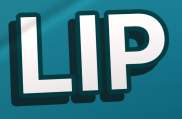
LIP